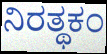
ನಿರತ್ಥಕಂ